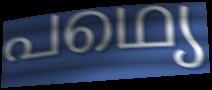
പഥ്യെ